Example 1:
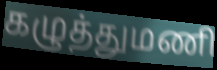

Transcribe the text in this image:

கழுத்துமணி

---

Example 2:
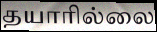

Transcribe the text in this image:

தயாரில்லை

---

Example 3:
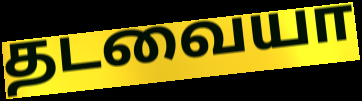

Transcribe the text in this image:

தடவையா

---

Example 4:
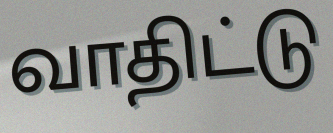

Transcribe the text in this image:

வாதிட்டு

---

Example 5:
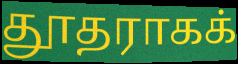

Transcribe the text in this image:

தூதராகக்